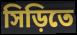
সিড়িতে